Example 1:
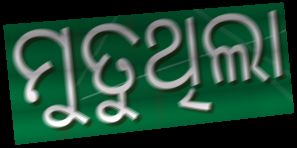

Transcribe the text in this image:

ମୁତୁଥିଲା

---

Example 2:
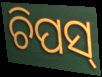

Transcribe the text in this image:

ଚିପସ୍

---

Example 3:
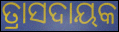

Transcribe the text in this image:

ତ୍ରାସଦାୟକ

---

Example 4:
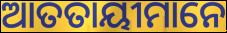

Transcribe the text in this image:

ଆତତାୟୀମାନେ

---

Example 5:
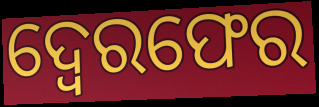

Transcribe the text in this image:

ଦ୍ବେରଫେର